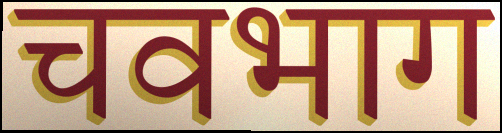
चवभाग